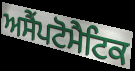
ਅਸੈਂਪਟੋਮੈਟਿਕ